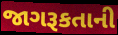
જાગરૂકતાની